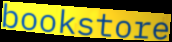
bookstore